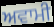
ਅਵਾਮੀ